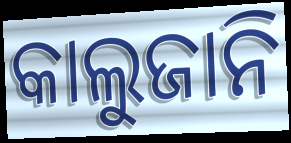
କାଲୁଜାନି